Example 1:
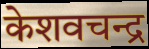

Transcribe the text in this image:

केशवचन्द्र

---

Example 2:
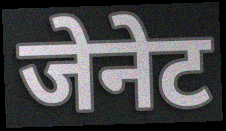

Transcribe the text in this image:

जेनेट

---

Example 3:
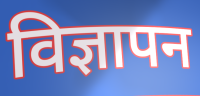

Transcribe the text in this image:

विज्ञापन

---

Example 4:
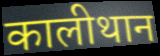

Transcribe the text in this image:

कालीथान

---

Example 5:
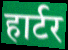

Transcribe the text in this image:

हार्टर